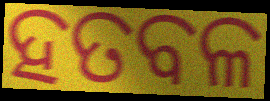
ହତବଳ